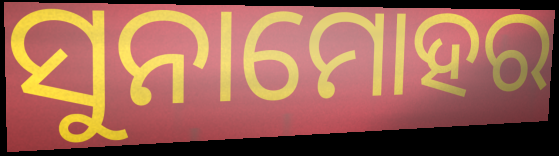
ସୁନାମୋହର